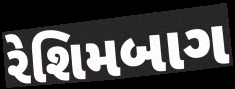
રેશિમબાગ